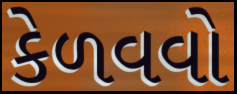
કેળવવો